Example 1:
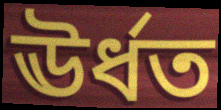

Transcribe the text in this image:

ঊৰ্ধত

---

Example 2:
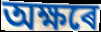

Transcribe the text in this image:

অক্ষৰে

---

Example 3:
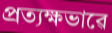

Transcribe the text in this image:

প্ৰত্যক্ষভাৱে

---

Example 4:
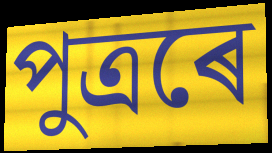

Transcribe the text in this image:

পুত্ৰৰে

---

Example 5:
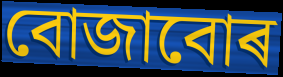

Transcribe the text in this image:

বোজাবোৰ